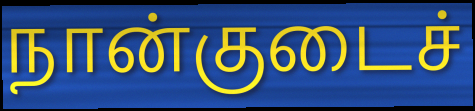
நான்குடைச்